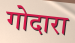
गोदारा